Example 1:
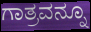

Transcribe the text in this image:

ಗಾತ್ರವನ್ನೂ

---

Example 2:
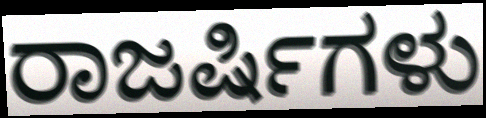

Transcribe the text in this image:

ರಾಜರ್ಷಿಗಳು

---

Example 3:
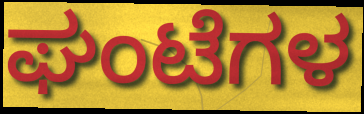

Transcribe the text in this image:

ಘಂಟೆಗಳ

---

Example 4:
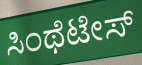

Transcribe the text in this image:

ಸಿಂಥೆಟೇಸ್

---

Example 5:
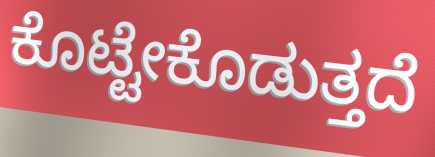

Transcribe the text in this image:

ಕೊಟ್ಟೇಕೊಡುತ್ತದೆ